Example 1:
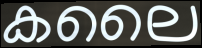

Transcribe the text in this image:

കലൈ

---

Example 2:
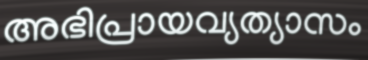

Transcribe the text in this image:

അഭിപ്രായവ്യത്യാസം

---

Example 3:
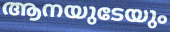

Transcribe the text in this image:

ആനയുടേയും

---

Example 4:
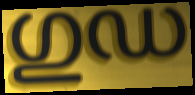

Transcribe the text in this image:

ഗുഡ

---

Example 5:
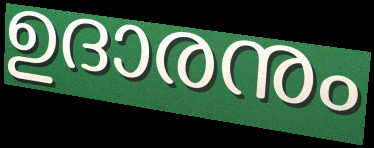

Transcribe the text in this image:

ഉദാരനും